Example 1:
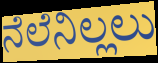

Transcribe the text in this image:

ನೆಲೆನಿಲ್ಲಲು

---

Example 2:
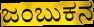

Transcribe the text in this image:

ಜಂಬುಕನ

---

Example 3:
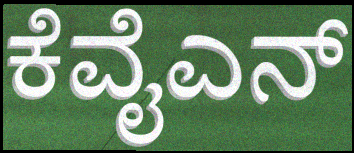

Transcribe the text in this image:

ಕೆವೈಎನ್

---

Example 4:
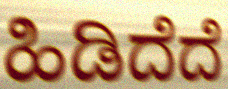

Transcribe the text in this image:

ಹಿಡಿದೆದೆ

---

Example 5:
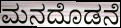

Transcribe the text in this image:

ಮನದೊಡನೆ